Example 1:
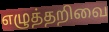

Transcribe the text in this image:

எழுத்தறிவை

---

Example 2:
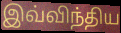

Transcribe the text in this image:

இவ்விந்திய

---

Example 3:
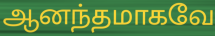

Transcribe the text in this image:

ஆனந்தமாகவே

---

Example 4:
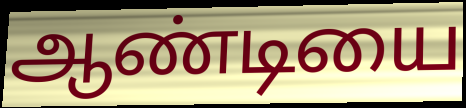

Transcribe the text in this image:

ஆண்டியை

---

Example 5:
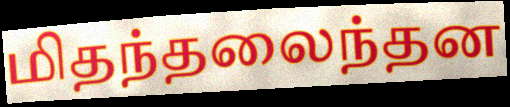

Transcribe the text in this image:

மிதந்தலைந்தன